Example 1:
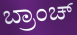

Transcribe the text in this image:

ಬ್ರಾಂಚ್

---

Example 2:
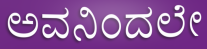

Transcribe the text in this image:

ಅವನಿಂದಲೇ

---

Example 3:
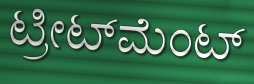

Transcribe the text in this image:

ಟ್ರೀಟ್‌ಮೆಂಟ್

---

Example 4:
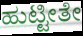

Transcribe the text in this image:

ಹುಟ್ಟೀತೇ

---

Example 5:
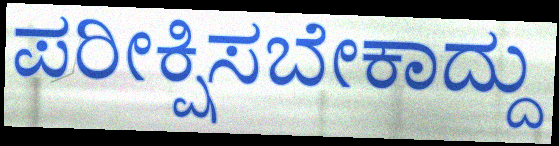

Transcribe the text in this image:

ಪರೀಕ್ಷಿಸಬೇಕಾದ್ದು